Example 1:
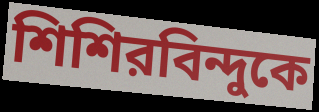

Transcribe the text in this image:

শিশিরবিন্দুকে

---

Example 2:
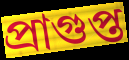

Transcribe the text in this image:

প্রাগুপ্ত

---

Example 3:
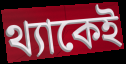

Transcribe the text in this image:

থ্যাকেই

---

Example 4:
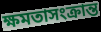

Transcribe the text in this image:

ক্ষমতাসংক্রান্ত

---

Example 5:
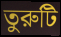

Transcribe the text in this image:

তুরুটি